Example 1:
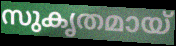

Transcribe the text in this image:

സുകൃതമായ്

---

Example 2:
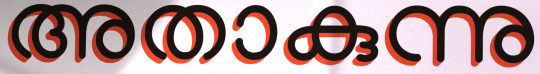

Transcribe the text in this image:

അതാകുന്നു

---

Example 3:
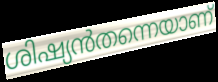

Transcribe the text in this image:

ശിഷ്യൻതന്നെയാണ്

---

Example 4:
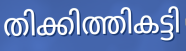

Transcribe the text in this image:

തിക്കിത്തികട്ടി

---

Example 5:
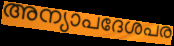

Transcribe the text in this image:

അന്യാപദേശപര